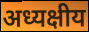
अध्यक्षीय